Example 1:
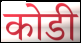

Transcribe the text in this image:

कोडी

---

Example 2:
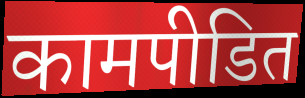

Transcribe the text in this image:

कामपीडित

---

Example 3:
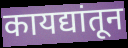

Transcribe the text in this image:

कायद्यांतून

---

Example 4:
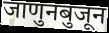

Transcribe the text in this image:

जाणुनबुजून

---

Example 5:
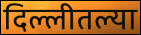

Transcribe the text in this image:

दिल्लीतल्या